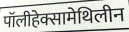
पॉलीहेक्सामेथिलीन